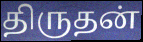
திருதன்